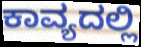
ಕಾವ್ಯದಲ್ಲಿ